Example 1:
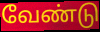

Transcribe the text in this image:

வேண்டு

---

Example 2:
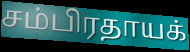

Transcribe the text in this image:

சம்பிரதாயக்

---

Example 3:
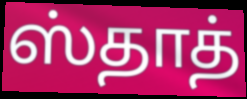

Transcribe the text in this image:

ஸ்தாத்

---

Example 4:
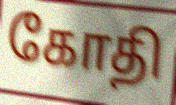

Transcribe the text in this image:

கோதி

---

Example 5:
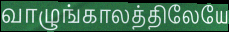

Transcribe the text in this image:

வாழுங்காலத்திலேயே